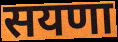
सयणा